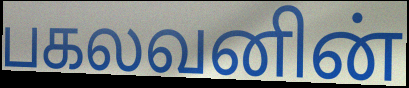
பகலவனின்